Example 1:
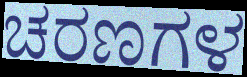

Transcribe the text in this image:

ಚರಣಗಳ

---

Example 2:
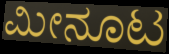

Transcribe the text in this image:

ಮೀನೂಟ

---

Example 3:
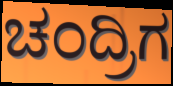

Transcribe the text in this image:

ಚಂದ್ರಿಗ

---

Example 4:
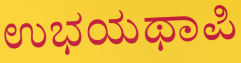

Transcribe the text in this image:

ಉಭಯಥಾಪಿ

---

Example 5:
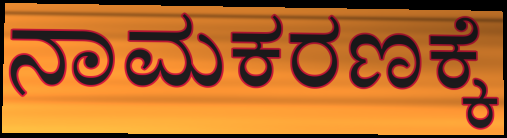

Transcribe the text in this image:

ನಾಮಕರಣಕ್ಕೆ